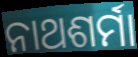
ନାଥଶର୍ମା